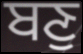
ਬਣੁ